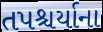
તપશ્ચર્યાના